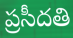
ప్రసీదతి